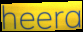
heera